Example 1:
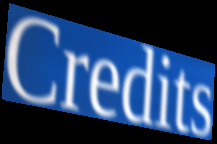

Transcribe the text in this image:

Credits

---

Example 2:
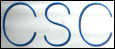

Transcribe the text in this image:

CSC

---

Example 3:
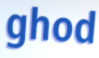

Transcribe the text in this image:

ghod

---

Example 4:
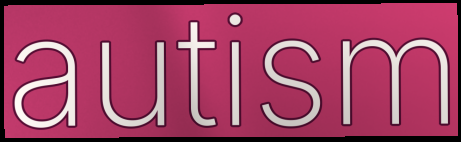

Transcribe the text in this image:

autism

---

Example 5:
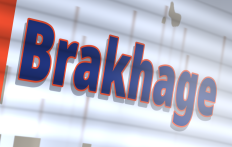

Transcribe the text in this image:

Brakhage